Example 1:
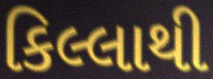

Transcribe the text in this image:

કિલ્લાથી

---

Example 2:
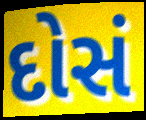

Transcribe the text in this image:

દોસં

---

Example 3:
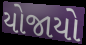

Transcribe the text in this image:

યોજાયો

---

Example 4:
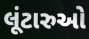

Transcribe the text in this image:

લૂંટારુઓ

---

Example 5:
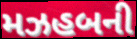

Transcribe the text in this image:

મઝહબની